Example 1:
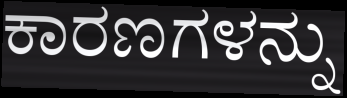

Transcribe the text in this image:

ಕಾರಣಗಳನ್ನು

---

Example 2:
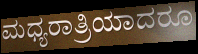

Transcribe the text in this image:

ಮಧ್ಯರಾತ್ರಿಯಾದರೂ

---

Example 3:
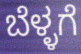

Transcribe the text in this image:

ಬೆಳ್ಳಗೆ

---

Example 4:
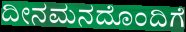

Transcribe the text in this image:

ದೀನಮನದೊಂದಿಗೆ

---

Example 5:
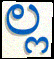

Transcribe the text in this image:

ಲ್ಲ